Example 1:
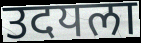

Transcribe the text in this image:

उदयला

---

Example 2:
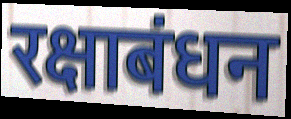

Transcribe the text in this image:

रक्षाबंधन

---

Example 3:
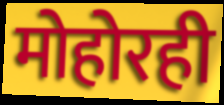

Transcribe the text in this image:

मोहोरही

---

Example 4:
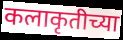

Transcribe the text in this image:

कलाकृतीच्या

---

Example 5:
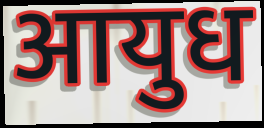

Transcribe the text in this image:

आयुध